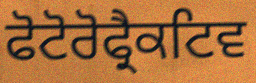
ਫੋਟੋਰੋਫ੍ਰੈਕਟਿਵ